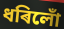
ধৰিলোঁ